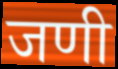
जणी